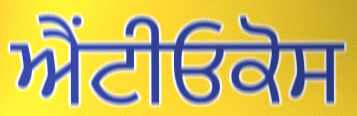
ਐਂਟੀਓਕੋਸ